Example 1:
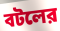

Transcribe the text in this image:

বটলের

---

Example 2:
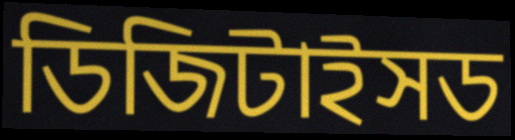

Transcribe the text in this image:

ডিজিটাইসড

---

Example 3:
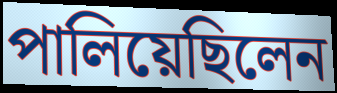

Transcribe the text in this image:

পালিয়েছিলেন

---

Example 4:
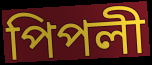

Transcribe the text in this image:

পিপলী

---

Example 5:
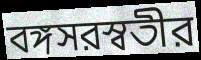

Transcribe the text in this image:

বঙ্গসরস্বতীর